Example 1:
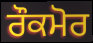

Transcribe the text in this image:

ਰੌਕਮੋਰ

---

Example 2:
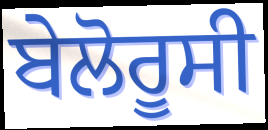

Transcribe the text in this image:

ਬੇਲੋਰੂਸੀ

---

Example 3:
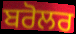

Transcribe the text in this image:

ਬਰੋਲਰ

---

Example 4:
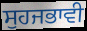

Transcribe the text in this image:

ਸੁਹਜਭਾਵੀ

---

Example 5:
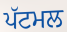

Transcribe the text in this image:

ਪੱਟਮਲ